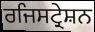
ਰਜਿਸਟ੍ਰੇਸ਼ਨ